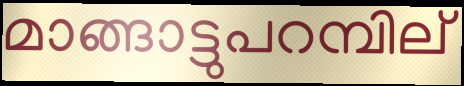
മാങ്ങാട്ടുപറമ്പില്